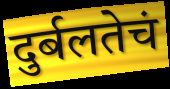
दुर्बलतेचं